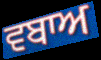
ਵਬਾਅ